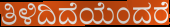
ತಿಳಿದಿದೆಯೆಂದರೆ